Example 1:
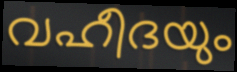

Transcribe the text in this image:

വഹീദയും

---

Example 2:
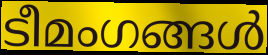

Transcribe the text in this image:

ടീമംഗങ്ങൾ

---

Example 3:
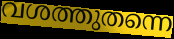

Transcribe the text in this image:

വശത്തുതന്നെ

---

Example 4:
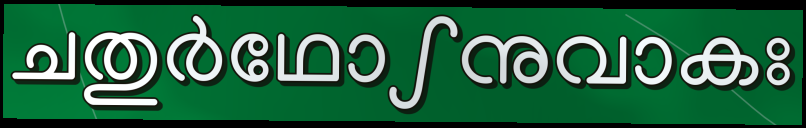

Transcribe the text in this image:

ചതുർഥോഽനുവാകഃ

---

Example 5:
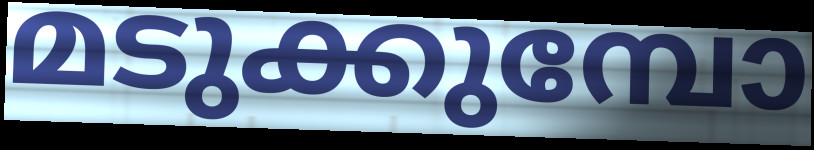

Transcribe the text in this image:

മടുക്കുമ്പോ